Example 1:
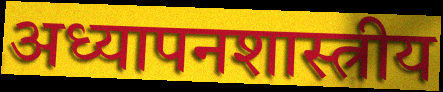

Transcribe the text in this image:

अध्यापनशास्त्रीय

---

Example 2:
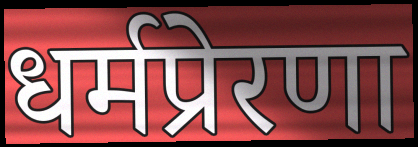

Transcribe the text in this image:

धर्मप्रेरणा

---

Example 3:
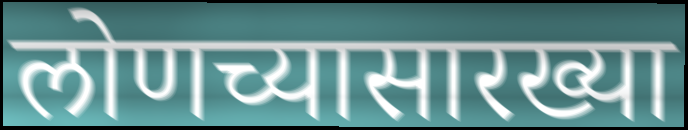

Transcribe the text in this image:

लोणच्यासारख्या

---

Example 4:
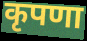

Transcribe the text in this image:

कृपणा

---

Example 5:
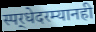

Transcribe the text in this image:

स्पर्धेदरम्यानही